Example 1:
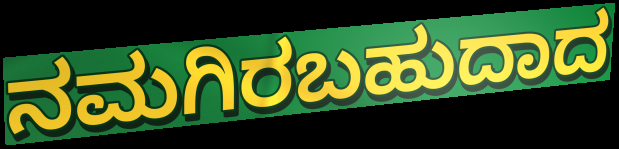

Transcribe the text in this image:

ನಮಗಿರಬಹುದಾದ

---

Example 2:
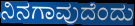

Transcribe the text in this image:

ನಿನಗಾವುದೆಂದು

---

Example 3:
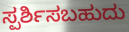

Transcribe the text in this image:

ಸ್ಪರ್ಶಿಸಬಹುದು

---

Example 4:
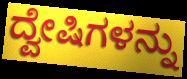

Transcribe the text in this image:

ದ್ವೇಷಿಗಳನ್ನು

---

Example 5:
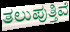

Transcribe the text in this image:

ತಲುಪುತ್ತಿವೆ